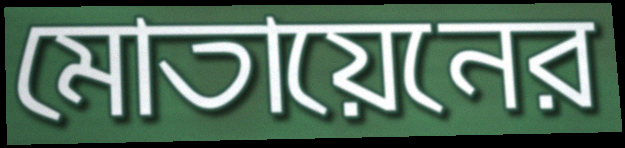
মোতায়েনের